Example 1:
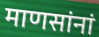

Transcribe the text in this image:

माणसांनां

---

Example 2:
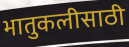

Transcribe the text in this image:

भातुकलीसाठी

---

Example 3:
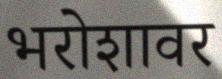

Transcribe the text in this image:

भरोशावर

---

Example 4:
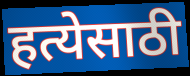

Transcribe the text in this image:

हत्येसाठी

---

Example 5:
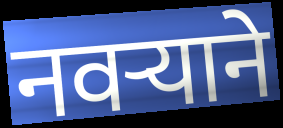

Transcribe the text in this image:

नवऱ्याने